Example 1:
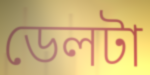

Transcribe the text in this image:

ডেলটা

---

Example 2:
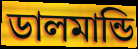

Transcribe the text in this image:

ডালমান্ডি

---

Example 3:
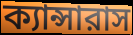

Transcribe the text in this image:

ক্যান্সারাস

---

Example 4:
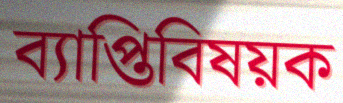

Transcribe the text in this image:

ব্যাপ্তিবিষয়ক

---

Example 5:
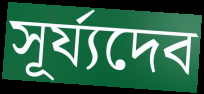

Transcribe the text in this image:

সূর্য্যদেব